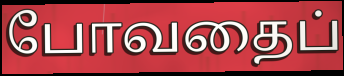
போவதைப்